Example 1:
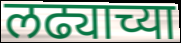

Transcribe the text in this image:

लढ्याच्या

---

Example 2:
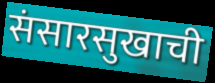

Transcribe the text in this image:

संसारसुखाची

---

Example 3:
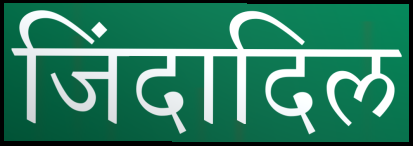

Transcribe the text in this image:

जिंदादिल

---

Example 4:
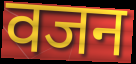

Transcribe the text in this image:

वजन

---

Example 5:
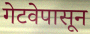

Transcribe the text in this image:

गेटवेपासून